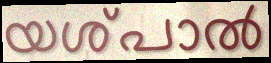
യശ്പാൽ